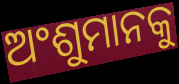
ଅଂଶୁମାନକୁ